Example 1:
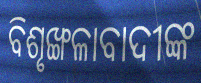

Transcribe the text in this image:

ବିଶୃଙ୍ଖଳାବାଦୀଙ୍କ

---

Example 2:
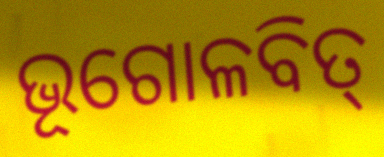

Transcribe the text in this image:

ଭୂଗୋଳବିତ୍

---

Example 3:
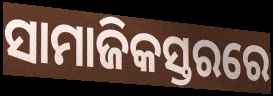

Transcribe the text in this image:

ସାମାଜିକସ୍ତରରେ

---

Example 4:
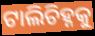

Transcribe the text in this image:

ଟାଲିଚିହ୍ନକୁ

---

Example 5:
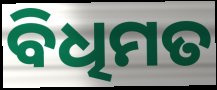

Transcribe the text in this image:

ବିଧିମତ